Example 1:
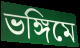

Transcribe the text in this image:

ভঙ্গিমে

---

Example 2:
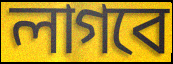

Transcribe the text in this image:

লাগবে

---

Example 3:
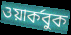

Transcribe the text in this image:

ওয়ার্কবুক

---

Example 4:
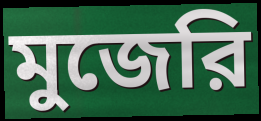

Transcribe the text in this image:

মুজেরি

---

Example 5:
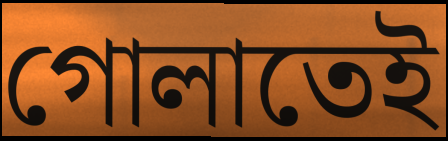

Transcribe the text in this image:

গোলাতেই